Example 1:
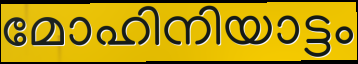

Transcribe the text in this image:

മോഹിനിയാട്ടം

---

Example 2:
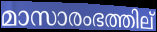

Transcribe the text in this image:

മാസാരംഭത്തില്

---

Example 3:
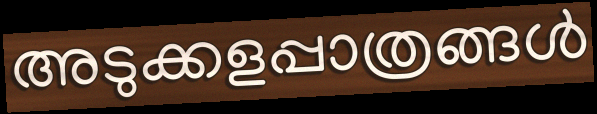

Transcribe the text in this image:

അടുക്കളപ്പാത്രങ്ങൾ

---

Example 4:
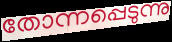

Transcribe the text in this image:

തോന്നപ്പെടുന്നു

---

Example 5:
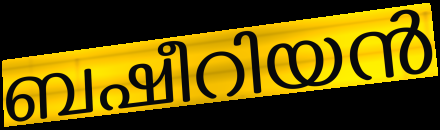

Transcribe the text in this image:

ബഷീറിയൻ